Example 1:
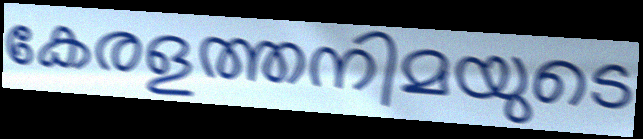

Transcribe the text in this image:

കേരളത്തനിമയുടെ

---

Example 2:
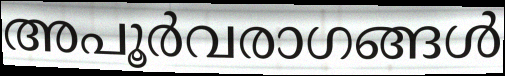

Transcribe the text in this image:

അപൂർവരാഗങ്ങൾ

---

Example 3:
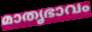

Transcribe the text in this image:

മാതൃഭാവം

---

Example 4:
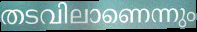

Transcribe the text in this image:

തടവിലാണെന്നും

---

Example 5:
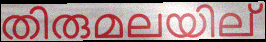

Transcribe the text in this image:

തിരുമലയില്